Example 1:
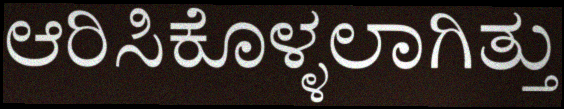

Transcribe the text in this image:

ಆರಿಸಿಕೊಳ್ಳಲಾಗಿತ್ತು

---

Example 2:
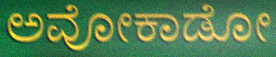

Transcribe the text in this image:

ಅವೋಕಾಡೋ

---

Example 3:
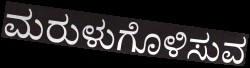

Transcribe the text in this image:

ಮರುಳುಗೊಳಿಸುವ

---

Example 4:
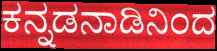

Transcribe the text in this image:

ಕನ್ನಡನಾಡಿನಿಂದ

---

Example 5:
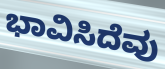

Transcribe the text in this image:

ಭಾವಿಸಿದೆವು